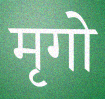
मृगो